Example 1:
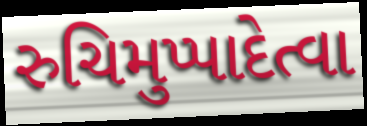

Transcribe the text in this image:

રુચિમુપ્પાદેત્વા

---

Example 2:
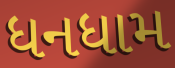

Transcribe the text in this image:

ધનધામ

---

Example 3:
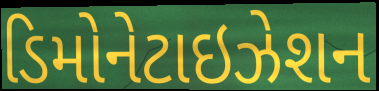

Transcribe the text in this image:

ડિમોનેટાઇઝેશન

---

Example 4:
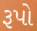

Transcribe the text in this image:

રૂપો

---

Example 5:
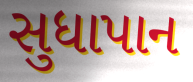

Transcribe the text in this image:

સુધાપાન